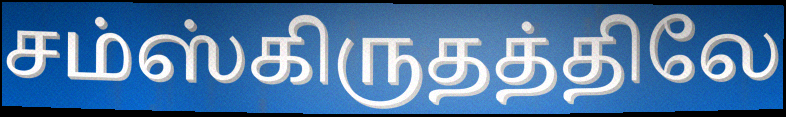
சம்ஸ்கிருதத்திலே